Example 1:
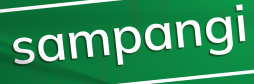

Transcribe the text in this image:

sampangi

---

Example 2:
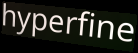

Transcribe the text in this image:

hyperfine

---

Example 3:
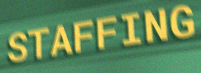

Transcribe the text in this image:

STAFFING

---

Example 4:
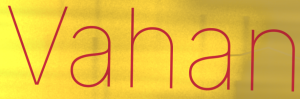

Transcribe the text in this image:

Vahan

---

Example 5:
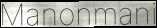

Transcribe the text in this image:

Manonmani